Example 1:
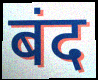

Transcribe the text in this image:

बंद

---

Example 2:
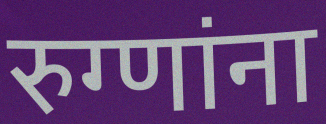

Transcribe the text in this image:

रुग्णांना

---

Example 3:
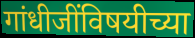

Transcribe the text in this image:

गांधीजींविषयीच्या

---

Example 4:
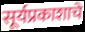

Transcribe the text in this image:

सूर्यप्रकाशाचे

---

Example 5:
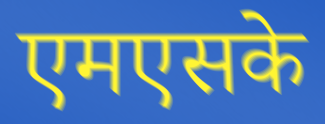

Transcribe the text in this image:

एमएसके